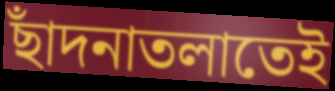
ছাঁদনাতলাতেই